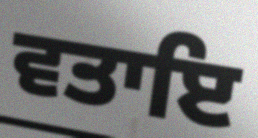
ਵਤਾਇ